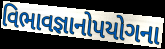
વિભાવજ્ઞાનોપયોગના